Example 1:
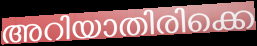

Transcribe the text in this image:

അറിയാതിരിക്കെ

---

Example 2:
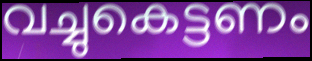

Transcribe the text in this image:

വച്ചുകെട്ടണം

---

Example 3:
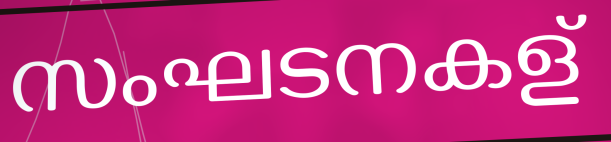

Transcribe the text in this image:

സംഘടനകള്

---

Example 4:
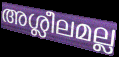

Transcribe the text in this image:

അശ്ലീലമല്ല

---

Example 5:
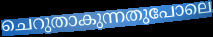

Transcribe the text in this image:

ചെറുതാകുന്നതുപോലെ